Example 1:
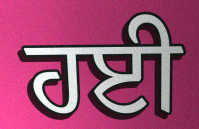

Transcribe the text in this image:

ਹਈ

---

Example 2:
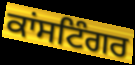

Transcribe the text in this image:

ਕਾਂਸਟਿੰਗਰ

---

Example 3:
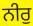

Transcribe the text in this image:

ਨੀਰੁ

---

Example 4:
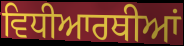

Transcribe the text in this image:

ਵਿਧੀਆਰਥੀਆਂ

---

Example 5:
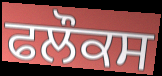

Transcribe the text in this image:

ਫਲੌਕਸ